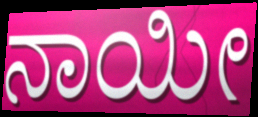
ನಾಯೀ